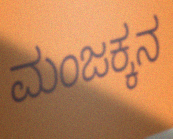
ಮಂಜಕ್ಕನ